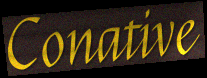
Conative